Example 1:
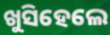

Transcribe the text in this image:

ଖୁସିହେଲେ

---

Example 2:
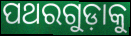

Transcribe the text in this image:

ପଥରଗୁଡ଼ାକୁ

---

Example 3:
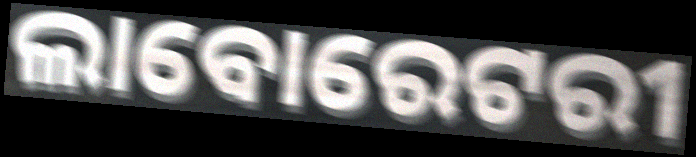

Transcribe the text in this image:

ଲାବୋରେଟରୀ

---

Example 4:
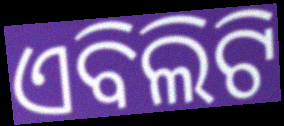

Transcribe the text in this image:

ଏବିଲିଟି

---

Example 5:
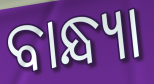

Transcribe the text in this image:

ବାନ୍ଧ୍ୟା